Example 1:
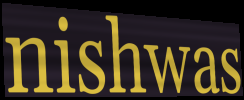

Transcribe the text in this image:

nishwas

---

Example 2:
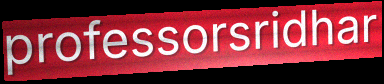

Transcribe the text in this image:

professorsridhar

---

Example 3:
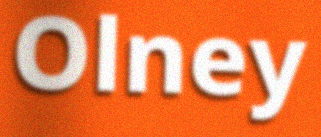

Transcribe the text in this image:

Olney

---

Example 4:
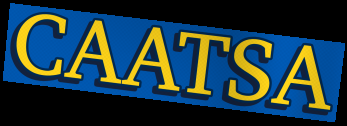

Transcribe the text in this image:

CAATSA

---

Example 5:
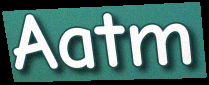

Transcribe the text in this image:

Aatm